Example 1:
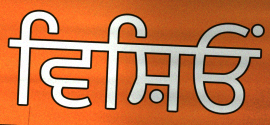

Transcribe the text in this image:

ਵਿਸ਼ਿਓਂ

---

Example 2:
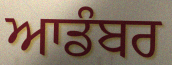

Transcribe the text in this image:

ਆਡੰਬਰ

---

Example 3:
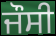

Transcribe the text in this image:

ਜੌਸੀ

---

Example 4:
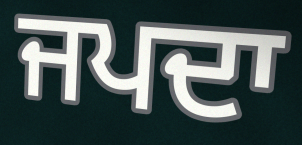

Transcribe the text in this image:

ਜਪਦਾ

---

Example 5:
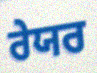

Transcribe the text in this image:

ਰੇਯਰ